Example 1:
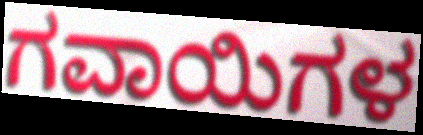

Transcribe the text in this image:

ಗವಾಯಿಗಳ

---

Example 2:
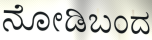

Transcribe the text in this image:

ನೋಡಿಬಂದ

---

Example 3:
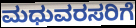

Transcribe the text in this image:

ಮಧುವರಸರಿಗೆ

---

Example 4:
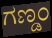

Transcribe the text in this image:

ಗಣ್ಡಂ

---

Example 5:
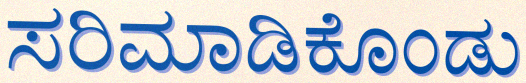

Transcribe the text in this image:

ಸರಿಮಾಡಿಕೊಂಡು